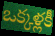
ఒక్కళ్లకీ